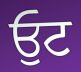
ਓੁਟ